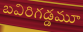
బవిరిగడ్డమూ